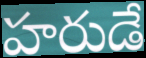
హరుడే